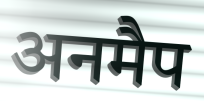
अनमैप